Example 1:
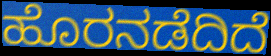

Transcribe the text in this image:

ಹೊರನಡೆದಿದೆ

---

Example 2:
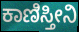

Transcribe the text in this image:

ಕಾಣಿಸ್ತೀನಿ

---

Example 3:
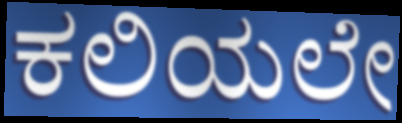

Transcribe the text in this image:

ಕಲಿಯಲೇ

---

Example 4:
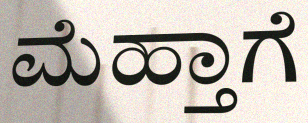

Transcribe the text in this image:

ಮೆಹ್ತಾಗೆ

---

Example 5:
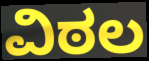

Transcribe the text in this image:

ವಿಠಲ